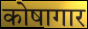
कोषागार